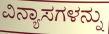
ವಿನ್ಯಾಸಗಳನ್ನು